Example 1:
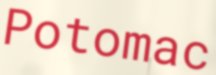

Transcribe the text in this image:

Potomac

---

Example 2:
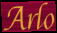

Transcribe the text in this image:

Arlo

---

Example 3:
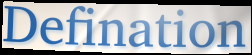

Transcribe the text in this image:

Defination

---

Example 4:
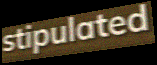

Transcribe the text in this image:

stipulated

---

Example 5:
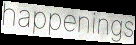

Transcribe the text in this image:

happenings